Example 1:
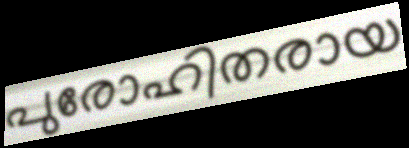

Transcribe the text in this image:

പുരോഹിതരായ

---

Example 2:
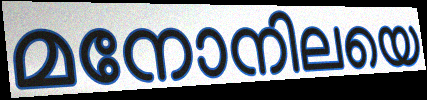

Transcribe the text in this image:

മനോനിലയെ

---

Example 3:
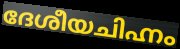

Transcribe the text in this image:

ദേശീയചിഹ്നം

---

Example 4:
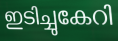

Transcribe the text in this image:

ഇടിച്ചുകേറി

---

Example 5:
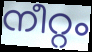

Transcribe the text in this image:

നീറ്റം